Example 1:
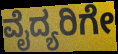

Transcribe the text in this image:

ವೈದ್ಯರಿಗೇ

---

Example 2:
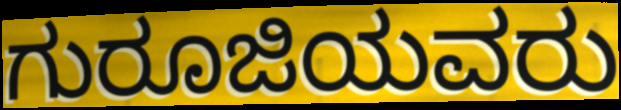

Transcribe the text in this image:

ಗುರೂಜಿಯವರು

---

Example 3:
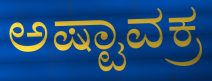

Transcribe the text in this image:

ಅಷ್ಟಾವಕ್ರ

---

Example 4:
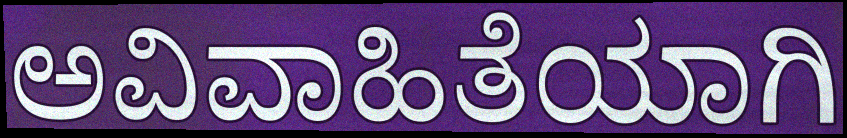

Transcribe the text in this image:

ಅವಿವಾಹಿತೆಯಾಗಿ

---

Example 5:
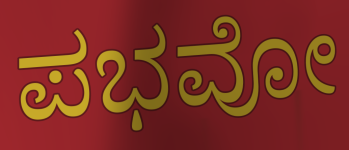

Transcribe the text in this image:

ಪಭವೋ